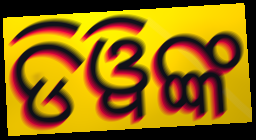
ଡିୱିଙ୍କ